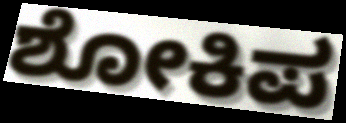
ಶೋಕಿಪ